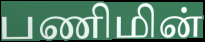
பணிமின்